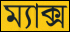
ম্যাক্স